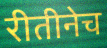
रीतीनेच